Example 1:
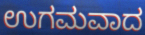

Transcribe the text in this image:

ಉಗಮವಾದ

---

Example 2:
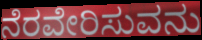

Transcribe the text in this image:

ನೆರವೇರಿಸುವನು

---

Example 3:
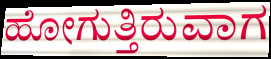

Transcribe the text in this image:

ಹೋಗುತ್ತಿರುವಾಗ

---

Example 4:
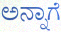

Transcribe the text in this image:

ಅನ್ನಾಗೆ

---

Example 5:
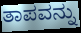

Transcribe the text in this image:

ತಾಪವನ್ನು